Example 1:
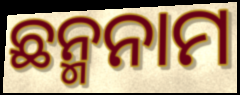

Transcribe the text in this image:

ଛନ୍ମନାମ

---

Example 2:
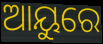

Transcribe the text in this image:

ଆୟୁରେ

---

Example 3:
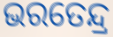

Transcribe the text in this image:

ଭରତେନ୍ଦ୍ର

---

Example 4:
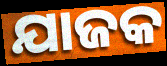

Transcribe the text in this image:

ଯାଜକ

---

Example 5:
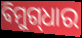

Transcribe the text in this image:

ବିମୁଗ୍‌ଧାର